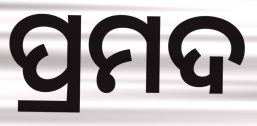
ପ୍ରମଦ